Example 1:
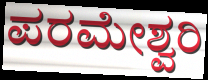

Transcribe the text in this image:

ಪರಮೇಶ್ವರಿ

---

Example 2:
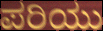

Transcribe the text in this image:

ಪರಿಯು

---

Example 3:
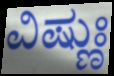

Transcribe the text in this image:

ವಿಷ್ಣುಃ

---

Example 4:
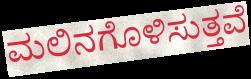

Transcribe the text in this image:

ಮಲಿನಗೊಳಿಸುತ್ತವೆ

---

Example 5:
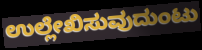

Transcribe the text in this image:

ಉಲ್ಲೇಖಿಸುವುದುಂಟು